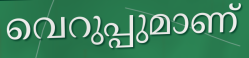
വെറുപ്പുമാണ്